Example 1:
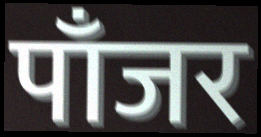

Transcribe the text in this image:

पाँजर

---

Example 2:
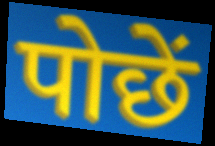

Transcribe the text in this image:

पोछें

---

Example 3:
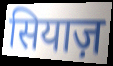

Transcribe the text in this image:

सियाज़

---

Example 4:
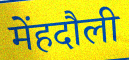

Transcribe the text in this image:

मेंहदौली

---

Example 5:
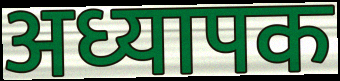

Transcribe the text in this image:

अध्यापक